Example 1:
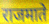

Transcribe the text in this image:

राजमाते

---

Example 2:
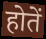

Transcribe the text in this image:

होतें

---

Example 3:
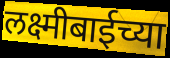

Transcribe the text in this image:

लक्ष्मीबाईच्या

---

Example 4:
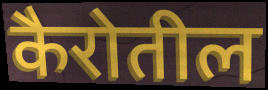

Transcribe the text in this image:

कैरोतील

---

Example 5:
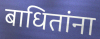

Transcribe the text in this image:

बाधितांना